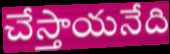
చేస్తాయనేది